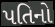
પતિનો